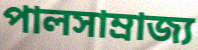
পালসাম্রাজ্য